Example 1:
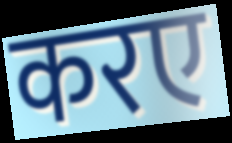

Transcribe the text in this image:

करए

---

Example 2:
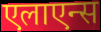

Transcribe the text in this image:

एलाएन्स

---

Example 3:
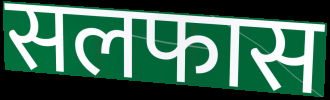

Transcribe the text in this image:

सलफास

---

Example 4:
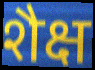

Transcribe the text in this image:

शैक्ष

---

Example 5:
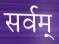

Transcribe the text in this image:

सर्वम्